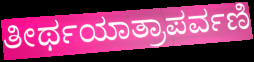
ತೀರ್ಥಯಾತ್ರಾಪರ್ವಣಿ